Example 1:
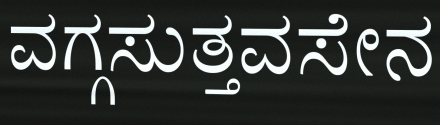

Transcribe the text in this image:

ವಗ್ಗಸುತ್ತವಸೇನ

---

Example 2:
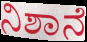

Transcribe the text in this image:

ನಿಶಾನೆ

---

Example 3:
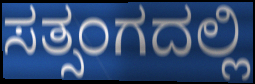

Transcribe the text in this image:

ಸತ್ಸಂಗದಲ್ಲಿ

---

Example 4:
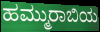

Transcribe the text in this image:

ಹಮ್ಮುರಾಬಿಯ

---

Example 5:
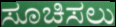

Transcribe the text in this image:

ಸೂಚಿಸಲು